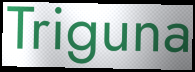
Triguna